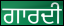
ਗਾਰਦੀ